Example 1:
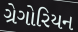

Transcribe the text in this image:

ગ્રેગોરિયન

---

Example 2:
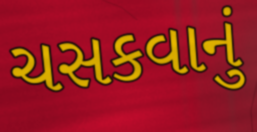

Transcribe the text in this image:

ચસકવાનું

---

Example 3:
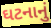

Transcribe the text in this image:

ઘટનાનું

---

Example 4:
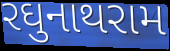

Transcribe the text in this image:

રઘુનાથરામ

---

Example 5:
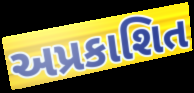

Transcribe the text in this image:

અપ્રકાશિત